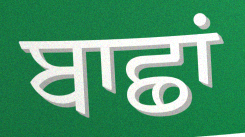
ਬਾਛਾਂ